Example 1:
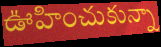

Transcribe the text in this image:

ఊహించుకున్నా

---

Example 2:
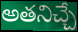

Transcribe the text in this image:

అతనిచ్చే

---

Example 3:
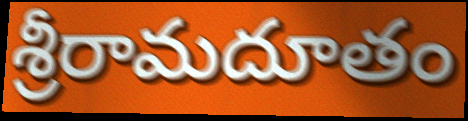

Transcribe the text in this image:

శ్రీరామదూతం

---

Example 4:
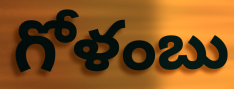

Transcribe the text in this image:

గోళంబు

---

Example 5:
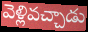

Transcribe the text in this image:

వెళ్లివచ్చాడు